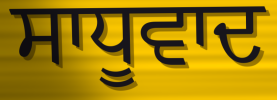
ਸਾਧੂਵਾਦ